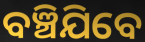
ବଞ୍ଚିଯିବେ